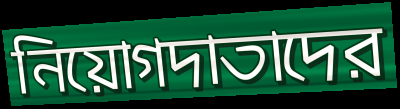
নিয়োগদাতাদের